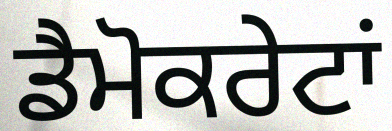
ਡੈਮੋਕਰੇਟਾਂ